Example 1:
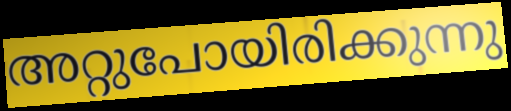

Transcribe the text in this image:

അറ്റുപോയിരിക്കുന്നു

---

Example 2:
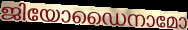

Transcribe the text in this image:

ജിയോഡൈനാമോ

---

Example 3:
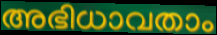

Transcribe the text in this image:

അഭിധാവതാം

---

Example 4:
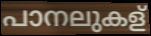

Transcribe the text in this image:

പാനലുകള്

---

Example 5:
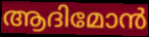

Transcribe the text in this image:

ആദിമോൻ